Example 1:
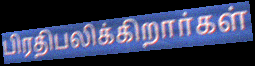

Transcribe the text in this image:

பிரதிபலிக்கிறார்கள்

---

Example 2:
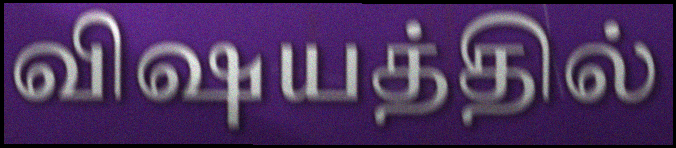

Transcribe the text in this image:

விஷயத்தில்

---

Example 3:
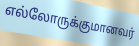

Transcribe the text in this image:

எல்லோருக்குமானவர்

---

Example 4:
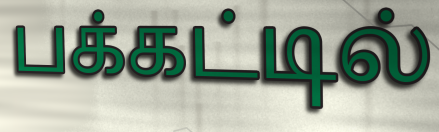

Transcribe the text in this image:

பக்கட்டில்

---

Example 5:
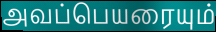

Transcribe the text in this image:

அவப்பெயரையும்